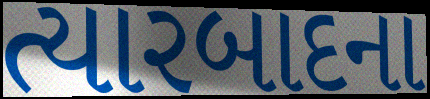
ત્યારબાદના